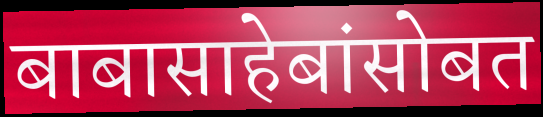
बाबासाहेबांसोबत